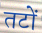
तटों